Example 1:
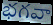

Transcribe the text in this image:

భగవా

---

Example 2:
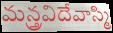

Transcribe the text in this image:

మన్త్రవిదేవాస్మి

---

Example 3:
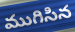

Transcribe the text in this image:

ముగిసిన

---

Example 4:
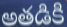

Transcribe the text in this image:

అతడికి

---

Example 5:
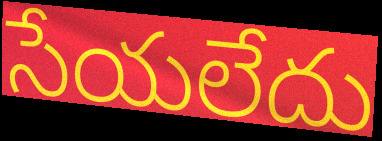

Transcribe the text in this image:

సేయలేదు